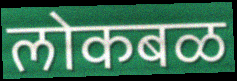
लोकबळ